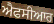
ਐਫਸੀਆਰ